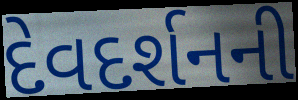
દેવદર્શનની